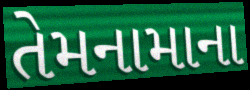
તેમનામાના